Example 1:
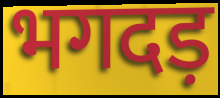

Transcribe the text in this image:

भगदड़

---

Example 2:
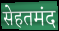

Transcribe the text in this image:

सेहतमंद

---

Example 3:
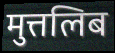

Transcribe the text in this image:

मुत्तलिब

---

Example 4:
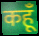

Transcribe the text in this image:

कहूँ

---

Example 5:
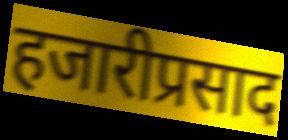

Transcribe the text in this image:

हजारीप्रसाद